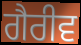
ਗੈਰੀਵ